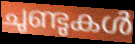
ചുണ്ടുകൾ